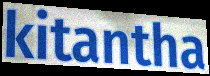
kitantha